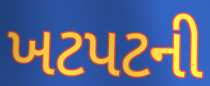
ખટપટની